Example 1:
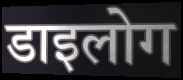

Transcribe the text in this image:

डाइलोग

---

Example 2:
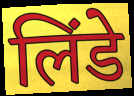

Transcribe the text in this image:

लिंडे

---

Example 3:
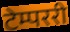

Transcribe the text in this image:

टेम्पररी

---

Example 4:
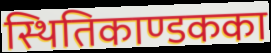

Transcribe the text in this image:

स्थितिकाण्डकका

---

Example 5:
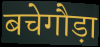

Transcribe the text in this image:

बचेगौड़ा